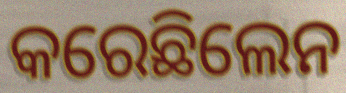
କରେଛିଲେନ